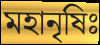
মহানৃষিঃ